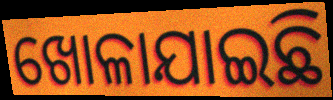
ଖୋଳାଯାଇଛି